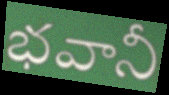
భవానీ